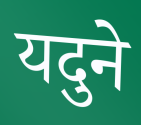
यदुने